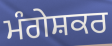
ਮੰਗੇਸ਼ਕਰ